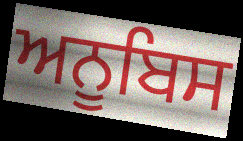
ਅਨੂਬਿਸ